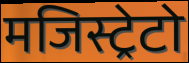
मजिस्ट्रेटो